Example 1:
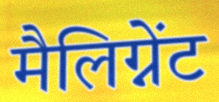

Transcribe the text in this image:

मैलिग्नेंट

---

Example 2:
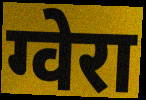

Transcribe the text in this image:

ग्वेरा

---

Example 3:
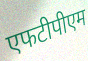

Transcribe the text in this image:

एफटीपीएम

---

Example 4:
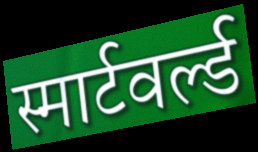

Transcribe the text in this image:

स्मार्टवर्ल्ड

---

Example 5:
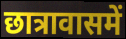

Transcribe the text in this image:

छात्रावासमें